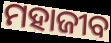
ମହାଜୀବ